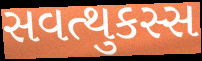
સવત્થુકસ્સ